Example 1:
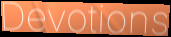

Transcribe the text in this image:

Devotions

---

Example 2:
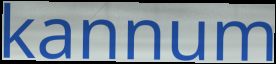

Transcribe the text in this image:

kannum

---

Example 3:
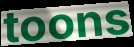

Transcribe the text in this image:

toons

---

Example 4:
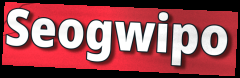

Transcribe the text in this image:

Seogwipo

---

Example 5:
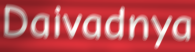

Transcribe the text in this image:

Daivadnya